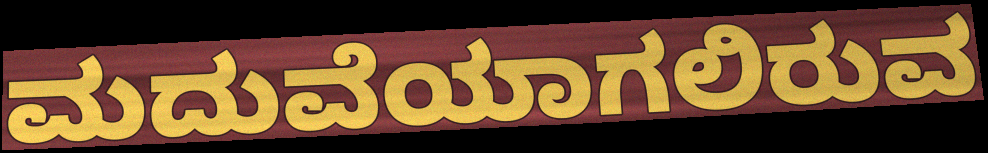
ಮದುವೆಯಾಗಲಿರುವ